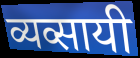
व्यव्सायी